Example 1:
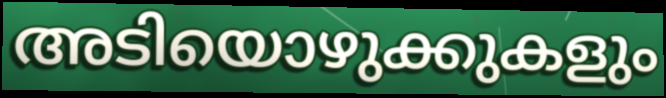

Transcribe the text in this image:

അടിയൊഴുക്കുകളും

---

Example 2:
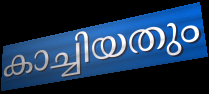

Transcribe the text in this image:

കാച്ചിയതും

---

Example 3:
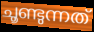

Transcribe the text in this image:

ചൂണ്ടുന്നത്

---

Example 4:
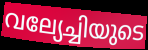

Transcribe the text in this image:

വല്യേച്ചിയുടെ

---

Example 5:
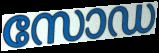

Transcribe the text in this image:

സോഡ